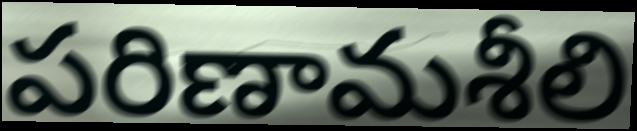
పరిణామశీలి